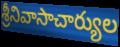
శ్రీనివాసాచార్యుల